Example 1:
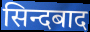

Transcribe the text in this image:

सिन्दबाद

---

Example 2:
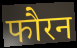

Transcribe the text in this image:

फौरन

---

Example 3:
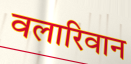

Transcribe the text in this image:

वलारिवान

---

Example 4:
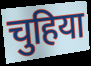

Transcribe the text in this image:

चुहिया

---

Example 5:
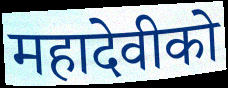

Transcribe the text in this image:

महादेवीको